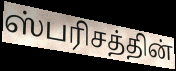
ஸ்பரிசத்தின்